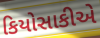
કિયોસાકીએ